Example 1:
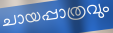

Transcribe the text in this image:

ചായപ്പാത്രവും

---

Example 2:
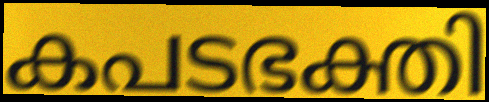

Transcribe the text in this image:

കപടഭക്തി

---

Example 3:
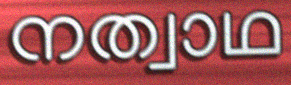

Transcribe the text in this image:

നത്വാഥ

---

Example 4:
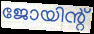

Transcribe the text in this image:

ജോയിന്റ്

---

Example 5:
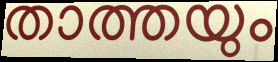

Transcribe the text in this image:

താത്തയും